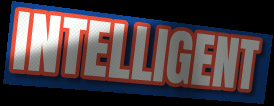
INTELLIGENT